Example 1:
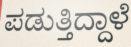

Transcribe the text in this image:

ಪಡುತ್ತಿದ್ದಾಳೆ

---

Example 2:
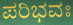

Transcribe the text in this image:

ಪರಿಭವಃ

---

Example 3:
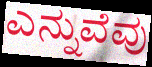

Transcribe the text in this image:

ಎನ್ನುವೆವು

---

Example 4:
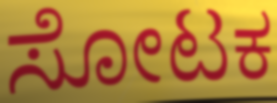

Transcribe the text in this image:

ಸೋಟಕ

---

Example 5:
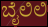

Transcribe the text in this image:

ಬೈಲಿಲಿ